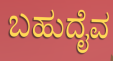
ಬಹುದೈವ